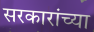
सरकारांच्या